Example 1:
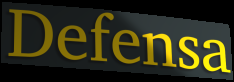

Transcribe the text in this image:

Defensa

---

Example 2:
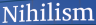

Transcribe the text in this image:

Nihilism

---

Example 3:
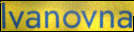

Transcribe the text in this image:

Ivanovna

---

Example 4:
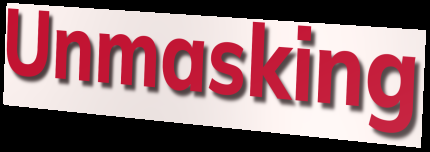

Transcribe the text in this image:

Unmasking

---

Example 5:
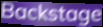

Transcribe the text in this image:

Backstage